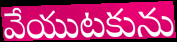
వేయుటకును